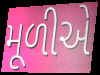
મૂળીએ